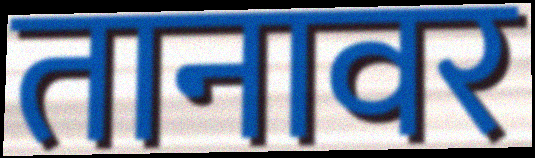
तानावर